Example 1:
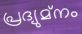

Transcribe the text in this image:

പ്രദ്യുമ്നം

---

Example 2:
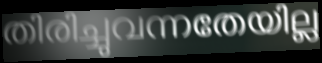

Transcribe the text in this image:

തിരിച്ചുവന്നതേയില്ല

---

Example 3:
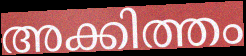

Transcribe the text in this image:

അക്കിത്തം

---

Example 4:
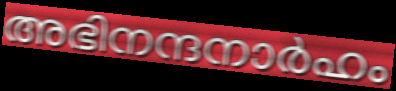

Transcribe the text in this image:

അഭിനന്ദനാർഹം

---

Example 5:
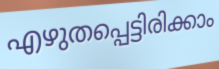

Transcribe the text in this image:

എഴുതപ്പെട്ടിരിക്കാം